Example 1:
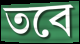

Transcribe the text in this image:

তবে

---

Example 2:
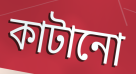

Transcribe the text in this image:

কাটানো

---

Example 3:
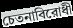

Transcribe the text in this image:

চেতনাবিরোধী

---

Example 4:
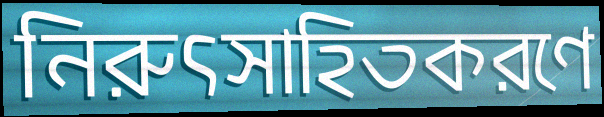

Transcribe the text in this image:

নিরুৎসাহিতকরণে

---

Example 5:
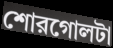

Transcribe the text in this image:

শোরগোলটা